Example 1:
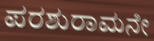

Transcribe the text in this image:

ಪರಶುರಾಮನೇ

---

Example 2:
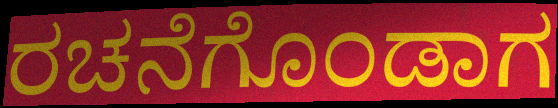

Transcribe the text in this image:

ರಚನೆಗೊಂಡಾಗ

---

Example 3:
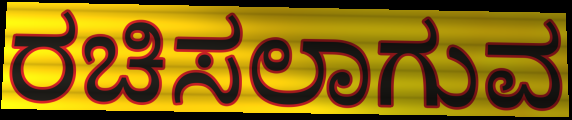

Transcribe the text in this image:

ರಚಿಸಲಾಗುವ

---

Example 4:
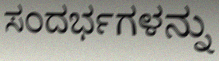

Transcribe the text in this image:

ಸಂದರ್ಭಗಳನ್ನು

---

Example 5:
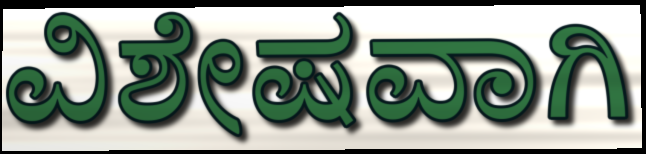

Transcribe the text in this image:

ವಿಶೇಷವಾಗಿ